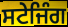
ਸਟੇਜਿੰਗ